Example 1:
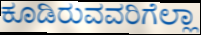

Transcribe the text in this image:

ಕೂಡಿರುವವರಿಗೆಲ್ಲಾ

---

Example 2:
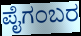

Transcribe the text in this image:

ಪೈಗಂಬರ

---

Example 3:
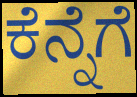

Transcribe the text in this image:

ಕೆನ್ನೆಗೆ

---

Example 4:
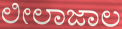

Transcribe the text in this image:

ಲೀಲಾಜಾಲ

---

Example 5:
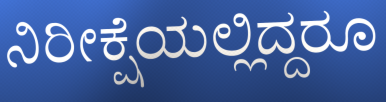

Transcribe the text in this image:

ನಿರೀಕ್ಷೆಯಲ್ಲಿದ್ದರೂ